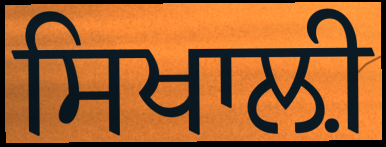
ਸਿਖਾਲ਼ੀ